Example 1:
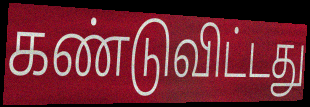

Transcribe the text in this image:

கண்டுவிட்டது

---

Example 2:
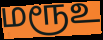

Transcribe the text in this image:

மரூஉ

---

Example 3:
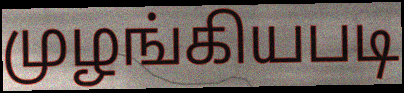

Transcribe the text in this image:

முழங்கியபடி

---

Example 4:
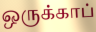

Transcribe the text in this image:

ஒருக்காப்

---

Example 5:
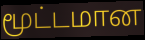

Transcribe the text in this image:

மூட்டமான